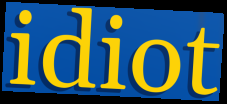
idiot